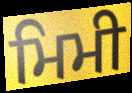
ਮਿਮੀ